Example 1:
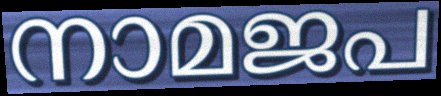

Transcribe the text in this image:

നാമജപ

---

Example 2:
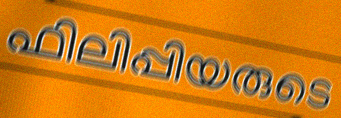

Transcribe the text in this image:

ഫിലിപ്പിയരുടെ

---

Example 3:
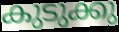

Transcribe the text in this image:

കുടുക്കു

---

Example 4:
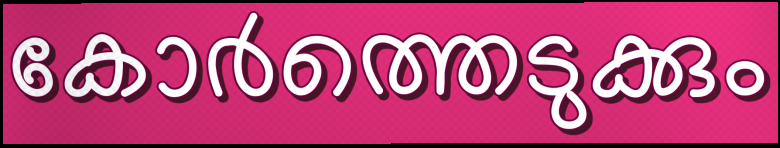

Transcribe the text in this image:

കോർത്തെടുക്കും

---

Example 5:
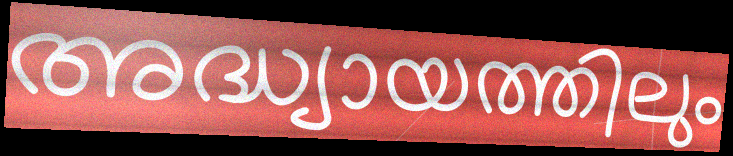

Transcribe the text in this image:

അദ്ധ്യായത്തിലും